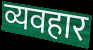
व्यवहार